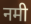
नमी